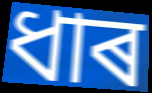
ধাৰ